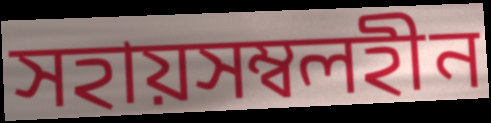
সহায়সম্বলহীন